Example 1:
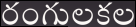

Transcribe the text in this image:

రంగులకల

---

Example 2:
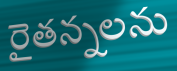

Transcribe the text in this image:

రైతన్నలను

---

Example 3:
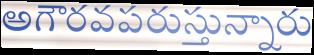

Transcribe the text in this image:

అగౌరవపరుస్తున్నారు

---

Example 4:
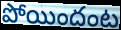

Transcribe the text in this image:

పోయిందంట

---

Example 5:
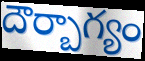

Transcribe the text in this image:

దౌర్బాగ్యం